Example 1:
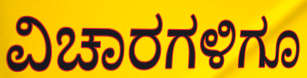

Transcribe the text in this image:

ವಿಚಾರಗಳಿಗೂ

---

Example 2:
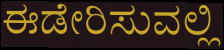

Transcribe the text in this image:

ಈಡೇರಿಸುವಲ್ಲಿ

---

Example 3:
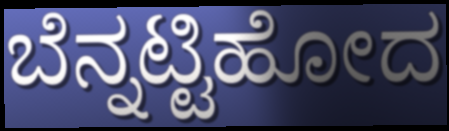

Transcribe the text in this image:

ಬೆನ್ನಟ್ಟಿಹೋದ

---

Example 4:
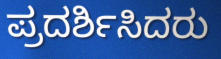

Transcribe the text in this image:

ಪ್ರದರ್ಶಿಸಿದರು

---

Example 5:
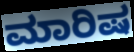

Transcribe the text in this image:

ಮಾರಿಷ